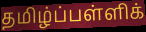
தமிழ்ப்பள்ளிக்